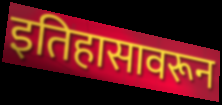
इतिहासावरून